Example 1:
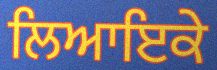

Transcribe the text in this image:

ਲਿਆਇਕੇ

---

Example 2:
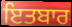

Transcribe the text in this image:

ਇਤਬਾਰ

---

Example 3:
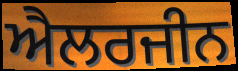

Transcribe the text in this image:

ਐਲਰਜੀਨ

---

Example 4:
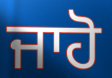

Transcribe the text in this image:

ਜਾਹੋ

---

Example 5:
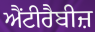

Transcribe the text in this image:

ਐਂਟੀਰੈਬੀਜ਼